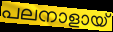
പലനാളായ്